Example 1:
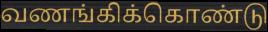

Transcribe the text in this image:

வணங்கிக்கொண்டு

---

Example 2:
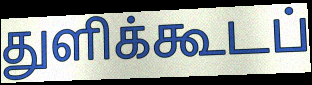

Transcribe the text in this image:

துளிக்கூடப்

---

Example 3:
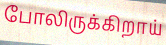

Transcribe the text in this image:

போலிருக்கிறாய்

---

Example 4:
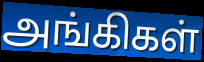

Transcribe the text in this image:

அங்கிகள்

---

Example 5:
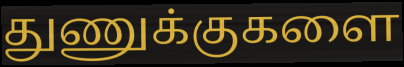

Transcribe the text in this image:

துணுக்குகளை